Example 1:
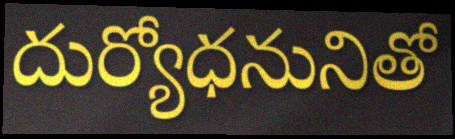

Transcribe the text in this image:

దుర్యోధనునితో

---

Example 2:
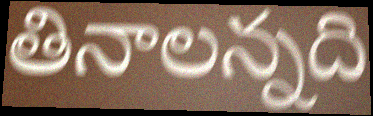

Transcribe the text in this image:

తినాలన్నది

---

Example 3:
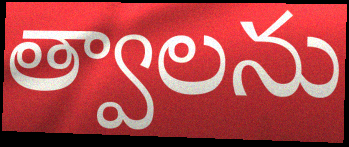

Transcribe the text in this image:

త్వాలను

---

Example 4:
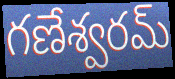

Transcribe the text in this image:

గణేశ్వరమ్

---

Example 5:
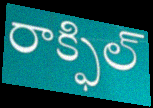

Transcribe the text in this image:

రాక్ఫిల్